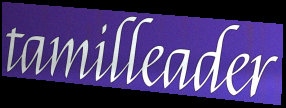
tamilleader